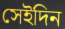
সেইদিন